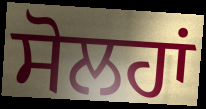
ਸੋਲਹਾਂ